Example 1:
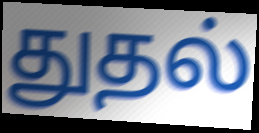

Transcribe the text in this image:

துதல்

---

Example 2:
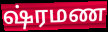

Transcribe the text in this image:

ஷ்ரமண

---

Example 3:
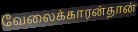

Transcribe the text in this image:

வேலைக்காரன்தான்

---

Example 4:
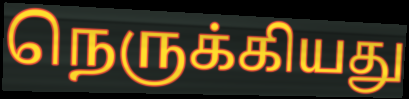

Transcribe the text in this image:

நெருக்கியது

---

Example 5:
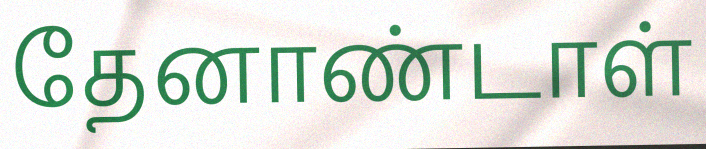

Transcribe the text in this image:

தேனாண்டாள்